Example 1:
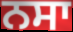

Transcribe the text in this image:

ਨਸਾ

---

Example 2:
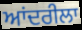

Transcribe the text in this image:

ਆਂਦਰੀਲਾ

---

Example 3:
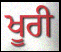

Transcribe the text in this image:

ਖੂਰੀ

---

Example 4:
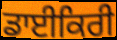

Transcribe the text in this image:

ਡਾਈਕਿਰੀ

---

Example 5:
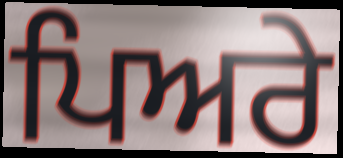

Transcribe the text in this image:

ਪਿਅਰੇ